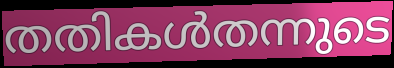
തതികൾതന്നുടെ